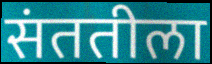
संततीला